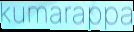
kumarappa